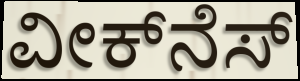
ವೀಕ್‌ನೆಸ್